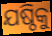
ଯଷ୍ଠିକୁ